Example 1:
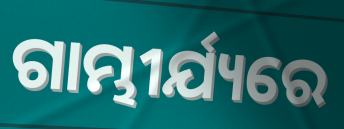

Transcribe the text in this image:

ଗାମ୍ଭୀର୍ଯ୍ୟରେ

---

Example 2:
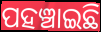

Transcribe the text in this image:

ପହଞ୍ଚାଇଛି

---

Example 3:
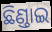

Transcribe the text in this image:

ଛିଣ୍ଡାଇ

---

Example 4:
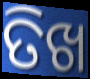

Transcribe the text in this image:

ତିଖ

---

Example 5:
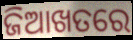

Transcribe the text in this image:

ଜିଆଖତରେ